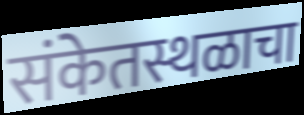
संकेतस्थळाचा